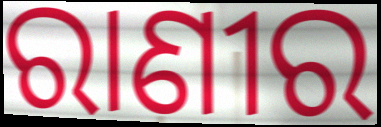
ରାଣୀର